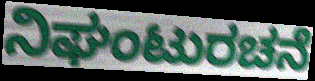
ನಿಘಂಟುರಚನೆ